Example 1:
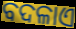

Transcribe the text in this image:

ବଦଳାଏ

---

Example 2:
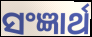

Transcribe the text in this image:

ସଂଜ୍ଞାର୍ଥ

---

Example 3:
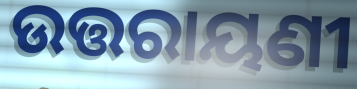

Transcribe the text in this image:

ଉତ୍ତରାୟଣୀ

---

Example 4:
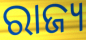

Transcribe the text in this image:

ରାଜ୍ୟ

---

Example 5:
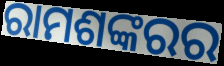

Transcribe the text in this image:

ରାମଶଙ୍କରର